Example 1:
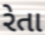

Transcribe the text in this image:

રેતા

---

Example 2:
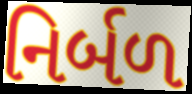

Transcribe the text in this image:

નિર્બળ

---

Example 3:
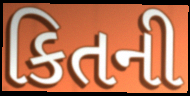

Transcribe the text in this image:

કિતની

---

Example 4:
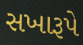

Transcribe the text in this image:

સખારૂપે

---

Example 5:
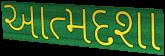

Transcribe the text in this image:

આત્મદશા